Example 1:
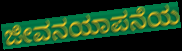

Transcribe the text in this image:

ಜೀವನಯಾಪನೆಯ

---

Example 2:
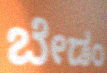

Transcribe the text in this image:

ಬೇಡಂ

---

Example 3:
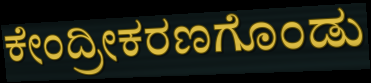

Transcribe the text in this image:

ಕೇಂದ್ರೀಕರಣಗೊಂಡು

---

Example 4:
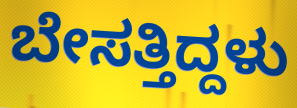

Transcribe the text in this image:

ಬೇಸತ್ತಿದ್ದಳು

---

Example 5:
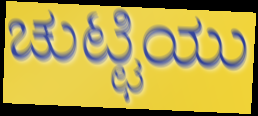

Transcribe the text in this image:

ಚುಟ್ಟಿಯು